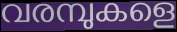
വരമ്പുകളെ